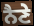
ਨੈਣੇ